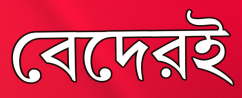
বেদেরই